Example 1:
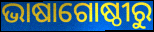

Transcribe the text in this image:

ଭାଷାଗୋଷ୍ଠୀରୁ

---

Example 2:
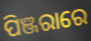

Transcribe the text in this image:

ପିଞ୍ଜରାରେ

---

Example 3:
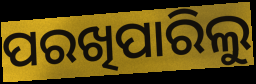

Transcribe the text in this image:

ପରଖିପାରିଲୁ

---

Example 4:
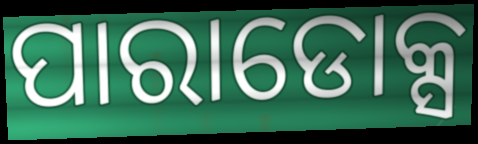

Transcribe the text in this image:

ପାରାଡୋକ୍ସ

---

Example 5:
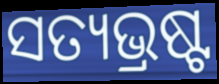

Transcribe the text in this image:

ସତ୍ୟଭ୍ରଷ୍ଟ